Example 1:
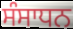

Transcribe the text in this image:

ਸੰਸਾਧਨ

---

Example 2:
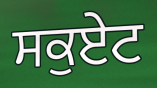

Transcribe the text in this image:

ਸਕੁਏਟ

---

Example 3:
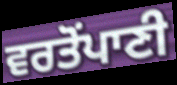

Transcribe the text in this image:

ਵਰਤੋਂਪਾਣੀ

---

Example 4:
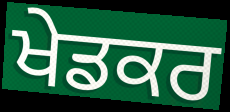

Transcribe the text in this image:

ਖੇਡਕਰ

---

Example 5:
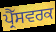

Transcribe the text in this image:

ਪ੍ਰੈੱਸਵਰਕ